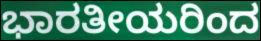
ಭಾರತೀಯರಿಂದ